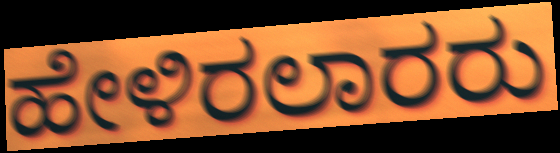
ಹೇಳಿರಲಾರರು